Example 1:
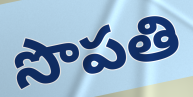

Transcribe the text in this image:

సొపతి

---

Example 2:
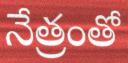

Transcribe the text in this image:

నేత్రంతో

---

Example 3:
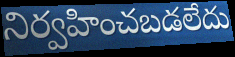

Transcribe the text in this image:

నిర్వహించబడలేదు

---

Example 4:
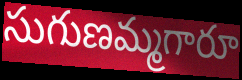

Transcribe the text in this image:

సుగుణమ్మగారూ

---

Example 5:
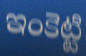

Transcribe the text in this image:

ఇంకెట్టి